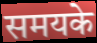
समयके